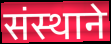
संस्थाने